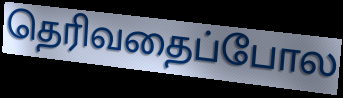
தெரிவதைப்போல